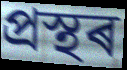
প্ৰস্থৰ